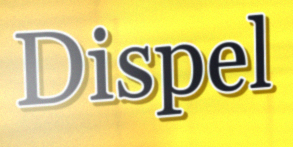
Dispel